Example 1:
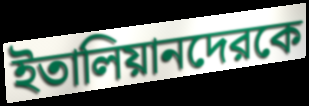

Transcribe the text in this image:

ইতালিয়ানদেরকে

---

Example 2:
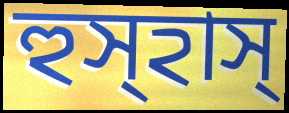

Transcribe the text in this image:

হুস্‌হাস্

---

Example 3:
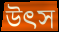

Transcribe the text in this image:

উত্‍স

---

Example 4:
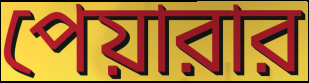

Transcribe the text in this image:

পেয়ারার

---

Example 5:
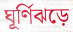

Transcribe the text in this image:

ঘূর্ণিঝড়ে